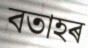
বতাহৰ